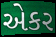
એકર